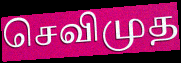
செவிமுத